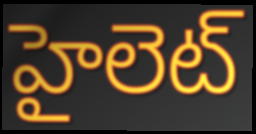
హైలెట్